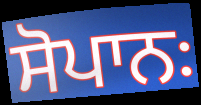
ਸੋਪਾਨਃ